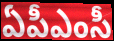
ఏపీఎంసీ